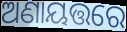
ଅଣାୟତ୍ତରେ